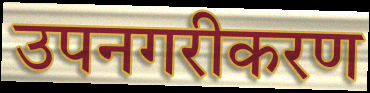
उपनगरीकरण